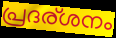
പ്രദര്ശനം